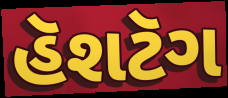
હૅશટૅગ